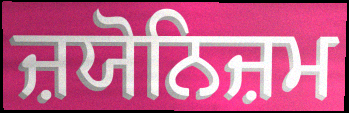
ਜ਼ਯੋਨਿਜ਼ਮ